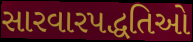
સારવારપદ્ધતિઓ